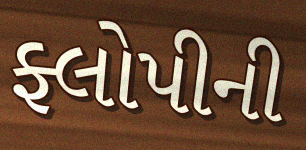
ફ્લોપીની